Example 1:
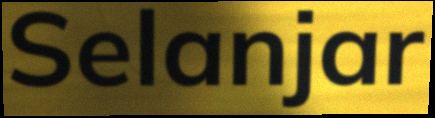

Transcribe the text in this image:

Selanjar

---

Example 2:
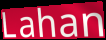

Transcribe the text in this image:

Lahan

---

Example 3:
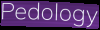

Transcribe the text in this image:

Pedology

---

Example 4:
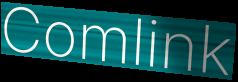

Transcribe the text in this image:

Comlink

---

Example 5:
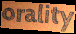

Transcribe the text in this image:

orality